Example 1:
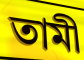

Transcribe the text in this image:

তামী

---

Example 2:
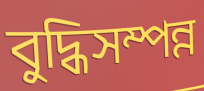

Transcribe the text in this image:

বুদ্ধিসম্পন্ন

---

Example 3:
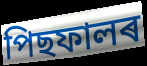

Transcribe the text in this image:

পিছফালৰ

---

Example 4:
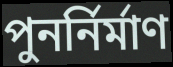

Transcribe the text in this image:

পুনৰ্নিৰ্মাণ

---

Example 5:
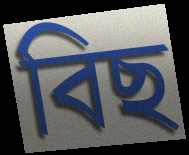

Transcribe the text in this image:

বিছ